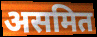
असमित